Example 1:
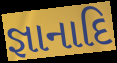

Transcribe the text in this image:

જ્ઞાનાદિ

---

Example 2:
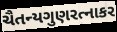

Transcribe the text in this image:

ચૈતન્યગુણરત્નાકર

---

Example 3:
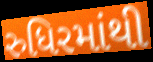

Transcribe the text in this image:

રુધિરમાંથી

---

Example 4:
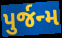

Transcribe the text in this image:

પુર્જન્મ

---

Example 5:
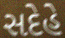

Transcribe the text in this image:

સદેહે